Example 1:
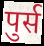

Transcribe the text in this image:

पुर्स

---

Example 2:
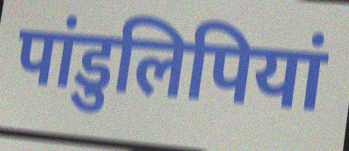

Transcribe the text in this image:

पांडुलिपियां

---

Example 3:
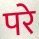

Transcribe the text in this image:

परे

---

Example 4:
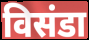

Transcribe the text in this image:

विसंडा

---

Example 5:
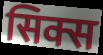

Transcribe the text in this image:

सिक्स